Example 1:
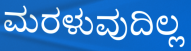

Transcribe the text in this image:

ಮರಳುವುದಿಲ್ಲ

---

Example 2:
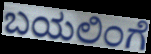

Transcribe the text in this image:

ಬಯಲಿಂಗೆ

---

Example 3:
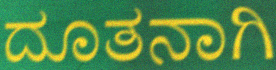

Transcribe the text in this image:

ದೂತನಾಗಿ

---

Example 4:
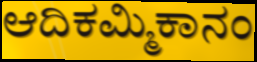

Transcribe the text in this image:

ಆದಿಕಮ್ಮಿಕಾನಂ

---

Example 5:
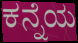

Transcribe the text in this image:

ಕನ್ನೆಯ